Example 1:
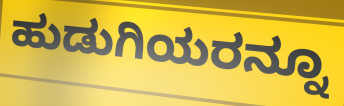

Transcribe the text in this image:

ಹುಡುಗಿಯರನ್ನೂ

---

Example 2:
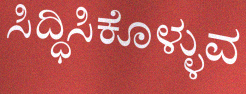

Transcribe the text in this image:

ಸಿದ್ಧಿಸಿಕೊಳ್ಳುವ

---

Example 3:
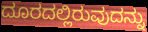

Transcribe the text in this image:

ದೂರದಲ್ಲಿರುವುದನ್ನು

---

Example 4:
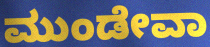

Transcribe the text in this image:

ಮುಂಡೇವಾ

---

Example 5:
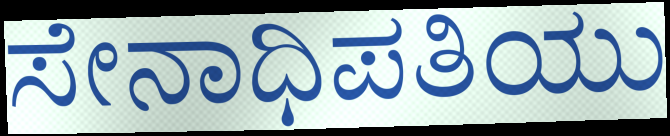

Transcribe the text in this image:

ಸೇನಾಧಿಪತಿಯು